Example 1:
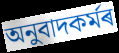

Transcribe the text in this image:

অনুবাদকৰ্মৰ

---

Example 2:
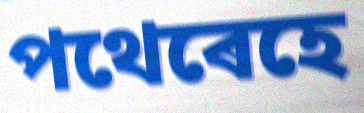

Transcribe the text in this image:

পথেৰেহে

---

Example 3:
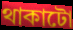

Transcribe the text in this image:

থাকাটো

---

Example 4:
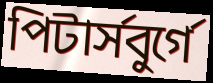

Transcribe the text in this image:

পিটাৰ্সবুৰ্গে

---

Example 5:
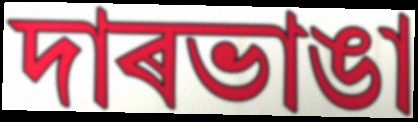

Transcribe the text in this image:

দাৰভাঙা